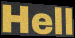
Hell